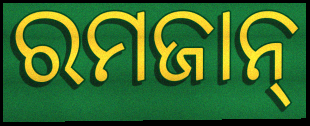
ରମଜାନ୍